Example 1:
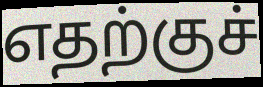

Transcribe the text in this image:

எதற்குச்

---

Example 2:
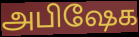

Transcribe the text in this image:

அபிஷேக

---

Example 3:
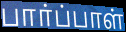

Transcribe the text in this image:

பார்ப்பாள்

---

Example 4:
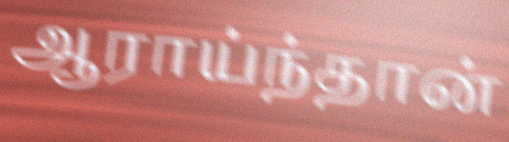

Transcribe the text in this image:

ஆராய்ந்தான்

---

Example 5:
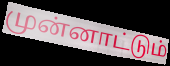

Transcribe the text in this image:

முன்னாட்டும்